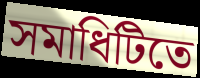
সমাধিটিতে